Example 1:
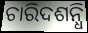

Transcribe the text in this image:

ଚାରିଦଶନ୍ଧି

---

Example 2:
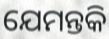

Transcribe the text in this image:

ଯେମନ୍ତକି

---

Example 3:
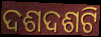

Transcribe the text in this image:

ଦଶଦଶଟି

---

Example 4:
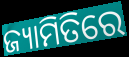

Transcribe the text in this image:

ଜ୍ୟାମିତିରେ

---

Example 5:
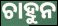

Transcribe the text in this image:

ଚାହୁନ